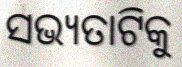
ସଭ୍ୟତାଟିକୁ